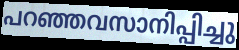
പറഞ്ഞവസാനിപ്പിച്ചു